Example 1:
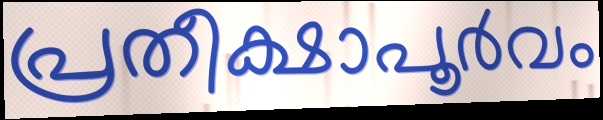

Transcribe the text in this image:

പ്രതീക്ഷാപൂർവം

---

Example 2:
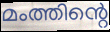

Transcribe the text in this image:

മംത്തിന്റെ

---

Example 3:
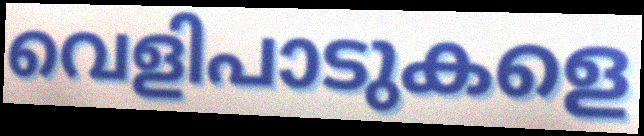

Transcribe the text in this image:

വെളിപാടുകളെ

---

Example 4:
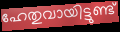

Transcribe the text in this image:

ഹേതുവായിട്ടുണ്ട്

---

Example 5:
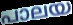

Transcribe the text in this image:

പാലയ